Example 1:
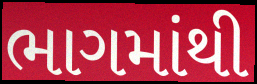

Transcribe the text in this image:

ભાગમાંથી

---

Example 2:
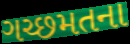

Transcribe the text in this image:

ગચ્છમતના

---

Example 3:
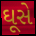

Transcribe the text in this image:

ઘૂસે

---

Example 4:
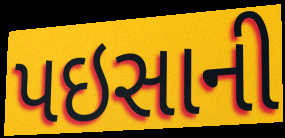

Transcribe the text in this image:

પઇસાની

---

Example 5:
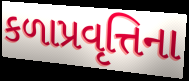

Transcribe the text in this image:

કળાપ્રવૃત્તિના